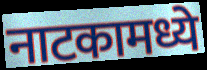
नाटकामध्ये